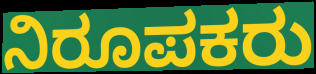
ನಿರೂಪಕರು